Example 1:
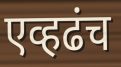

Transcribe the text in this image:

एव्हढंच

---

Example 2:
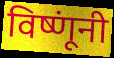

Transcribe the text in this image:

विष्णूंनी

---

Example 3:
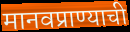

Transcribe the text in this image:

मानवप्राण्याची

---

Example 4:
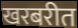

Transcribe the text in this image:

खरबरीत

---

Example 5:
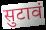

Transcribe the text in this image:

सुटावं